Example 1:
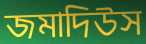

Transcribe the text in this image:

জমাদিউস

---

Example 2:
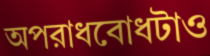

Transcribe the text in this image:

অপরাধবোধটাও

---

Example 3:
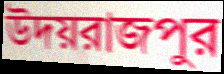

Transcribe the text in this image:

উদয়রাজপুর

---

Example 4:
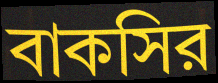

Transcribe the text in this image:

বাকসির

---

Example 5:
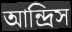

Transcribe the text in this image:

আন্দ্রিস